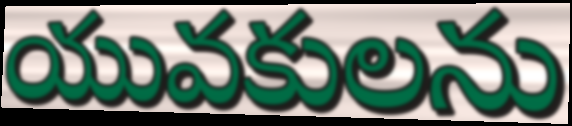
యువకులను